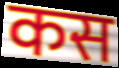
कस